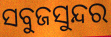
ସବୁଜସୁନ୍ଦର